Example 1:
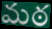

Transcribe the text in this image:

మఠ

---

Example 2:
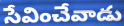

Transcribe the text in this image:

సేవించేవాడు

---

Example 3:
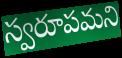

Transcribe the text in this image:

స్వరూపమని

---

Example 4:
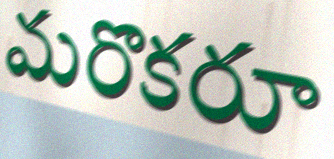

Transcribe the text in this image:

మరొకరూ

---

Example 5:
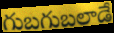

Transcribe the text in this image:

గుబగుబలాడే